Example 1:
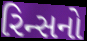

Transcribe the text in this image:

રિન્સનો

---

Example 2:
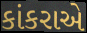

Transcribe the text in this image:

કાંકરાએ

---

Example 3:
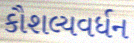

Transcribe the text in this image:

કૌશલ્યવર્ધન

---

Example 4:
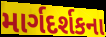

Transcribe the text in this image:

માર્ગદર્શકના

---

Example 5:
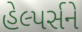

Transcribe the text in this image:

હેલ્પર્સને